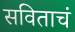
सविताचं